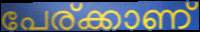
പേര്ക്കാണ്